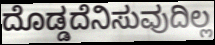
ದೊಡ್ಡದೆನಿಸುವುದಿಲ್ಲ